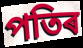
পতিৰ